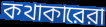
কথাকারেরা